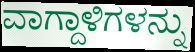
ವಾಗ್ದಾಳಿಗಳನ್ನು